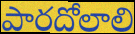
పారదోలాలి